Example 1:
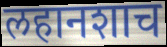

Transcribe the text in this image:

लहानशाच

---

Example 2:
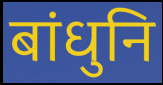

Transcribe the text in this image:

बांधुनि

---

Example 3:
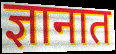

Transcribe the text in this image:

ज्ञानात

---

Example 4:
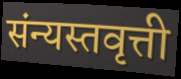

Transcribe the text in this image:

संन्यस्तवृत्ती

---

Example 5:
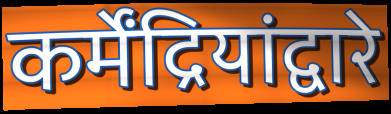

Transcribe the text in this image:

कर्मेंद्रियांद्वारे